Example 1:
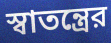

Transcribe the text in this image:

স্বাতন্ত্রের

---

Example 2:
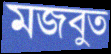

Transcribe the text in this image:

মজবুত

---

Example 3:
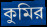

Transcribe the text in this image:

কুমির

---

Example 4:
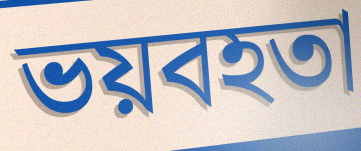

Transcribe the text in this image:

ভয়বহতা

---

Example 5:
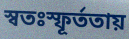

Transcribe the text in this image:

স্বতঃস্ফূর্ততায়